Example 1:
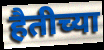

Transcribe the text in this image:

हैतीच्या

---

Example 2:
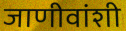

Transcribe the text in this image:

जाणीवांशी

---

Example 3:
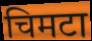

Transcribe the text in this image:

चिमटा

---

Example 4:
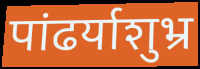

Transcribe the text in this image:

पांढर्याशुभ्र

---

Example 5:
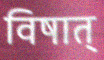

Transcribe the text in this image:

विषात्